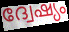
ദ്വേഷ്യം